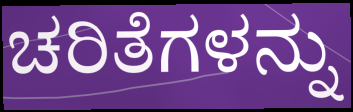
ಚರಿತೆಗಳನ್ನು